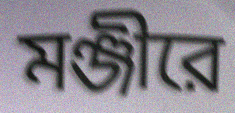
মঞ্জীরে